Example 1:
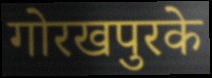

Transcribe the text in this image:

गोरखपुरके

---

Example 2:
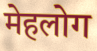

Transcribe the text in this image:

मेहलोग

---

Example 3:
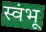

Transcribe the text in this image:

स्वंभू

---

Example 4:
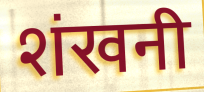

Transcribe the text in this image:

शंखनी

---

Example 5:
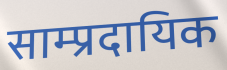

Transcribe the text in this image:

साम्प्रदायिक